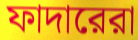
ফাদারেরা